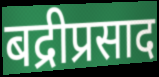
बद्रीप्रसाद